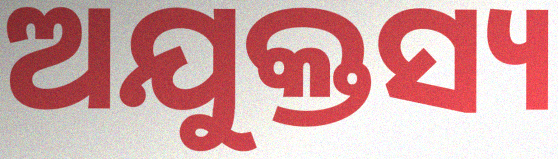
ଅଯୁକ୍ତସ୍ୟ